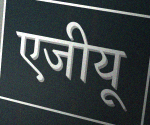
एजीयू